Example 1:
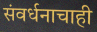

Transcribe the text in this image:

संवर्धनाचाही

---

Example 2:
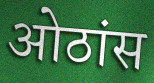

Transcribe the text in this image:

ओठांस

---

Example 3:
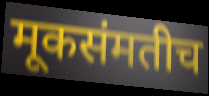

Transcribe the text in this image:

मूकसंमतीच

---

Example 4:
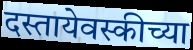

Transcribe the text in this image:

दस्तायेवस्कीच्या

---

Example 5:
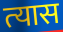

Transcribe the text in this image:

त्‍यास